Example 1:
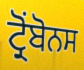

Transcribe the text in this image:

ਟ੍ਰੋਂਬੋਨਸ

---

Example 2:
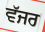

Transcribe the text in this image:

ਵੱਜਰ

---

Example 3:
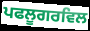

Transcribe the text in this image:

ਪਫਲੂਗਰਵਿਲ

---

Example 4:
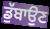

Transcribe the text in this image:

ਡੁੱਬਾਉਣ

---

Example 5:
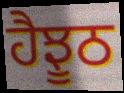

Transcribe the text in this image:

ਹੈਝੂਠ